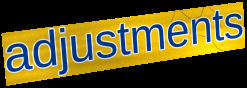
adjustments